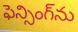
ఫెన్సింగ్‌ను